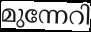
മുന്നേറി